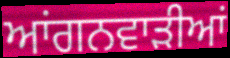
ਆਂਗਨਵਾੜੀਆਂ